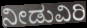
ನೀಡುವಿರಿ